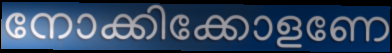
നോക്കിക്കോളണേ